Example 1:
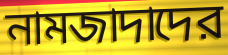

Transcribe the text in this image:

নামজাদাদের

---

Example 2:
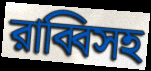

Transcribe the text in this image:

রাব্বিসহ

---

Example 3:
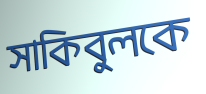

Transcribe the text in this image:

সাকিবুলকে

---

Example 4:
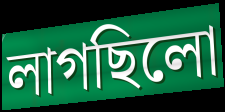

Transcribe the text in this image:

লাগছিলো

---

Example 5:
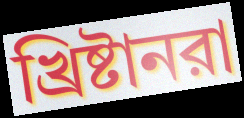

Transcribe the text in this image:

খ্রিষ্টানরা